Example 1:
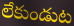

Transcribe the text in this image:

లేకుండుట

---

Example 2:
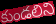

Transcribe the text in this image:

కుండలిని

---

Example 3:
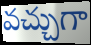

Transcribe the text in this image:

వచ్చుగా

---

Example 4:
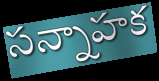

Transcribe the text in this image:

సన్నాహక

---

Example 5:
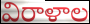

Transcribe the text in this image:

విరాళాల